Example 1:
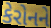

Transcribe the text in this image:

કેરોનને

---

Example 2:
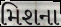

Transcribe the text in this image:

મિશના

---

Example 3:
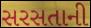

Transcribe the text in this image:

સરસતાની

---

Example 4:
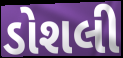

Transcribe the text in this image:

ડોશલી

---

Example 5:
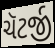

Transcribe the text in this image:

ચૅટર્જી